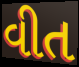
વીત